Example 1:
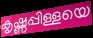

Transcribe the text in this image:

കൃഷ്ണപ്പിള്ളയെ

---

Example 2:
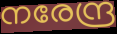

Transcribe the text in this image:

നരേന്ദ്ര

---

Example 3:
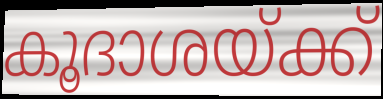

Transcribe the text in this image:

കൂദാശയ്ക്ക്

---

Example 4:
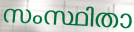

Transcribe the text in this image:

സംസ്ഥിതാ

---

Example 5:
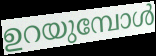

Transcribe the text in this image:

ഉറയുമ്പോൾ